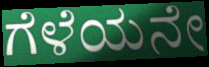
ಗೆಳೆಯನೇ